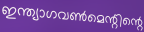
ഇന്ത്യാഗവൺമെന്റിന്റെ